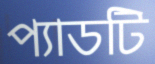
প্যাডটি